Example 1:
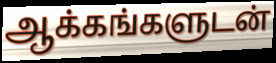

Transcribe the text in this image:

ஆக்கங்களுடன்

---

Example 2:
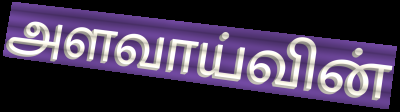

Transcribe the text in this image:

அளவாய்வின்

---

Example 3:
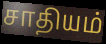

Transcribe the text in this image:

சாதியம்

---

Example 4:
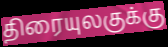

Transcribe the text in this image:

திரையுலகுக்கு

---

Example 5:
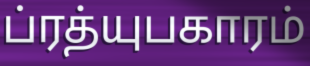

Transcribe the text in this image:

ப்ரத்யுபகாரம்